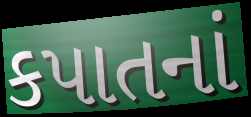
કપાતનાં